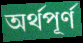
অৰ্থপূৰ্ণ